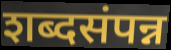
शब्दसंपन्न